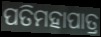
ପତିମହାପାତ୍ର